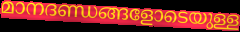
മാനദണ്ഡങ്ങളോടെയുള്ള